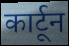
कार्टून